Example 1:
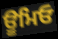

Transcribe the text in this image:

ਊਮਿਓ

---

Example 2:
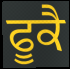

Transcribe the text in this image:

ਫੂਕੈ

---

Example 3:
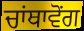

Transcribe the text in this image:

ਚਾਂਥਾਵੋਂਗ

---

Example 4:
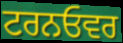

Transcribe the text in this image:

ਟਰਨਓਵਰ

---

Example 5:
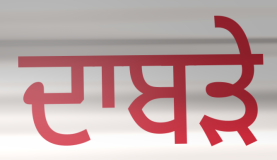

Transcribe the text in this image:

ਦਾਬੜੇ